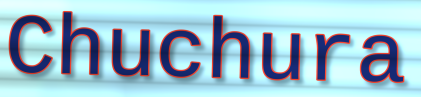
Chuchura